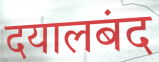
दयालबंद